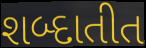
શબ્દાતીત